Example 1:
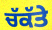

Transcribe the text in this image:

ਚੱਕੱਤੇ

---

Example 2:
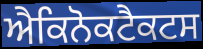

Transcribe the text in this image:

ਐਕਿਨੋਕਟੈਕਟਸ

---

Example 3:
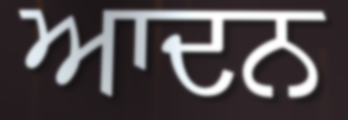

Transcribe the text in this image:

ਆਦਨ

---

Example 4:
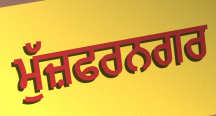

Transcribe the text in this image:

ਮੁੱਜ਼ਫਰਨਗਰ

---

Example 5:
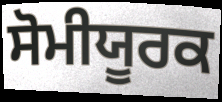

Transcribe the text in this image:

ਸੋਮੀਯੂਰਕ